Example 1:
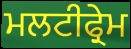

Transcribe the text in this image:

ਮਲਟੀਫ੍ਰੇਮ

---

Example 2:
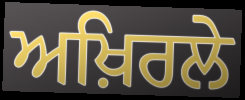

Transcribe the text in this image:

ਅਖ਼ਿਰਲੇ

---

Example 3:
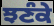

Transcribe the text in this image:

ਝਣੰਕੇ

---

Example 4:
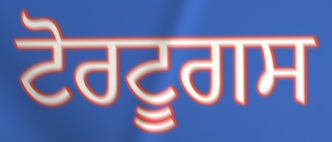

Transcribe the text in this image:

ਟੋਰਟੂਗਸ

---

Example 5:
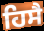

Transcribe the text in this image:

ਹਿਸੈ